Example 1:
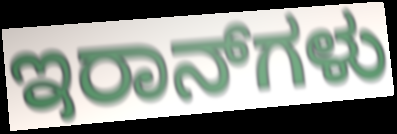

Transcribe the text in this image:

ಇರಾನ್‌ಗಳು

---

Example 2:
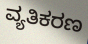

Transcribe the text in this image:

ವ್ಯತಿಕರಣ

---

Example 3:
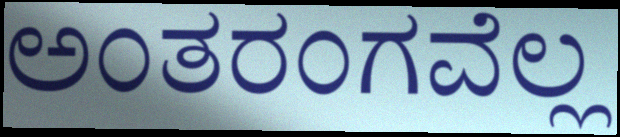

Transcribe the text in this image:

ಅಂತರಂಗವೆಲ್ಲ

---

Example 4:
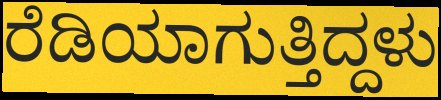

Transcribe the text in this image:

ರೆಡಿಯಾಗುತ್ತಿದ್ದಳು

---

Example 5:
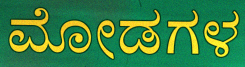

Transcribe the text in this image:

ಮೋಡಗಳ